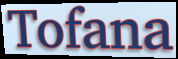
Tofana